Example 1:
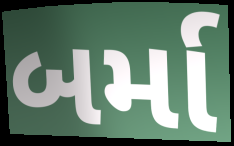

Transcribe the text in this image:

બર્મા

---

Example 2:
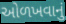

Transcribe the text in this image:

ઓળખવાનું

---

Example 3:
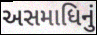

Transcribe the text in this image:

અસમાધિનું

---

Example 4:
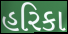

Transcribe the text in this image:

હરિકા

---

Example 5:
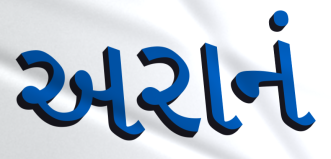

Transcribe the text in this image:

અરાનં